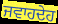
ਜਵਾਹਦੇਹ